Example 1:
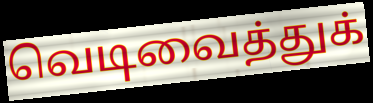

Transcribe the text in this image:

வெடிவைத்துக்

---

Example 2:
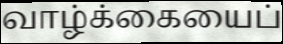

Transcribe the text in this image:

வாழ்க்கையைப்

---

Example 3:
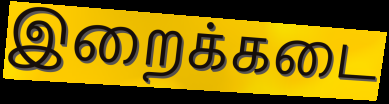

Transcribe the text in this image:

இறைக்கடை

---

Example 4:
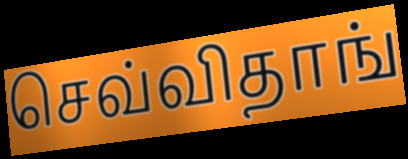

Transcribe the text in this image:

செவ்விதாங்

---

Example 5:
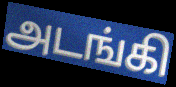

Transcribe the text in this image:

அடங்கி